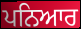
ਪਨਿਆਰ